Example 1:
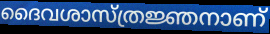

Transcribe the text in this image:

ദൈവശാസ്ത്രജ്ഞനാണ്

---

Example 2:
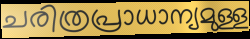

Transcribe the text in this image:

ചരിത്രപ്രാധാന്യമുള്ള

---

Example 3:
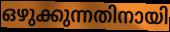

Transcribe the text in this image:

ഒഴുക്കുന്നതിനായി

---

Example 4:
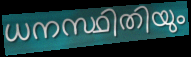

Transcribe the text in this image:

ധനസ്ഥിതിയും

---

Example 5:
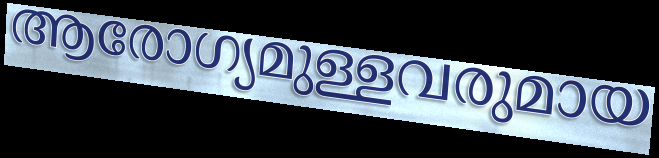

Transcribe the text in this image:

ആരോഗ്യമുള്ളവരുമായ